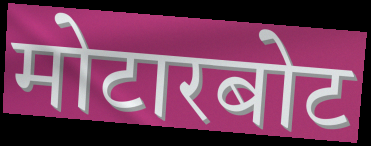
मोटारबोट